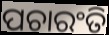
ପଚାରଂତି